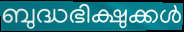
ബുദ്ധഭിക്ഷുക്കൾ